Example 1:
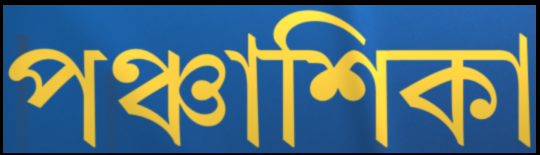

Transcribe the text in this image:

পঞ্চাশিকা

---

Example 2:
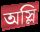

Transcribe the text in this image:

অস্লি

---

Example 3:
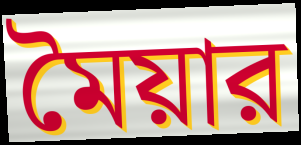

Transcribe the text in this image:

মৈয়ার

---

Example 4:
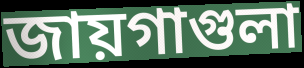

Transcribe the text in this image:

জায়গাগুলা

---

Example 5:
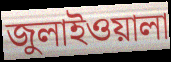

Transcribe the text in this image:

জুলাইওয়ালা